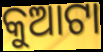
କୁଆଟା